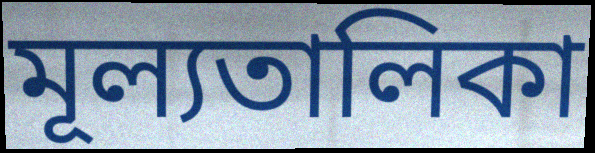
মূল্যতালিকা